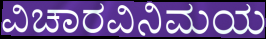
ವಿಚಾರವಿನಿಮಯ